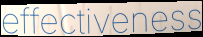
effectiveness